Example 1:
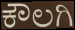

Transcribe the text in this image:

ಕೌಲಗಿ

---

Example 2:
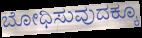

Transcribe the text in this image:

ಬೋಧಿಸುವುದಕ್ಕೂ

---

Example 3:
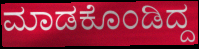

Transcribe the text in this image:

ಮಾಡಕೊಂಡಿದ್ದ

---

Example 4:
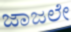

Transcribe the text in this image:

ಜಾಜಲೇ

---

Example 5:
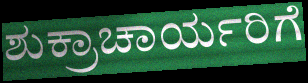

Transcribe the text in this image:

ಶುಕ್ರಾಚಾರ್ಯರಿಗೆ